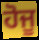
ਹੋਜੂ